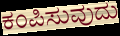
ಕಂಪಿಸುವುದು